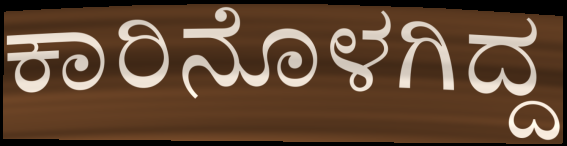
ಕಾರಿನೊಳಗಿದ್ದ